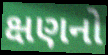
ક્ષણનો